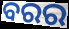
ବରର